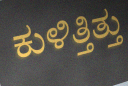
ಕುಳಿತ್ತಿತ್ತು